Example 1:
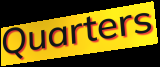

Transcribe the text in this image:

Quarters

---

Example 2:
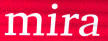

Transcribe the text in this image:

mira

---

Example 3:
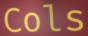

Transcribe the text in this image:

Cols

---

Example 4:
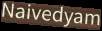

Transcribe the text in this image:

Naivedyam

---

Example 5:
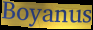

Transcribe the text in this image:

Boyanus